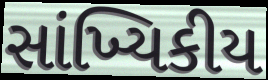
સાંખ્યિકીય